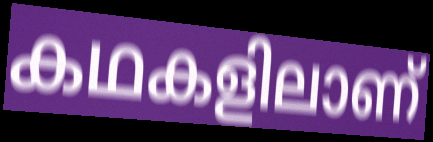
കഥകളിലാണ്